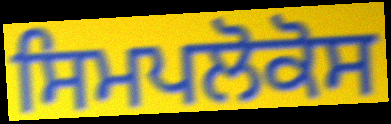
ਸਿਮਪਲੋਕੋਸ